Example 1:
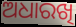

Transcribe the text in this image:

ଅଧାରଖି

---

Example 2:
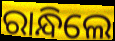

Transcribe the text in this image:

ରାନ୍ଧିଲେ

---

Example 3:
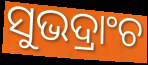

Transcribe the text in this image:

ସୁଭଦ୍ରାଂଚ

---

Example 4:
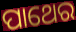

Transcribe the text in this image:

ପାଥେର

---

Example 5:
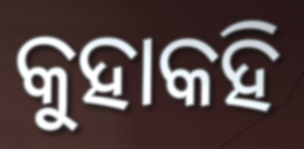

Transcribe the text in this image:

କୁହାକହି